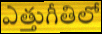
ఎత్తుగీతిలో